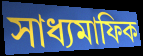
সাধ্যমাফিক